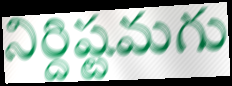
నిర్దిష్టమగు